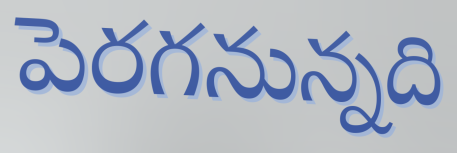
పెరగనున్నది